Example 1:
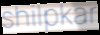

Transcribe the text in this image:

shilpkar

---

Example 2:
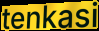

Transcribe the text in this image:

tenkasi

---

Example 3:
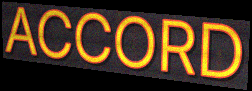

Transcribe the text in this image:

ACCORD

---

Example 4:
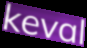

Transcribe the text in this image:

keval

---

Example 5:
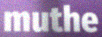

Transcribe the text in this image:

muthe